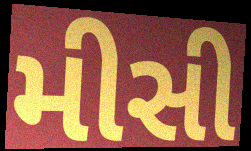
મીસી